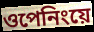
ওপেনিংয়ে